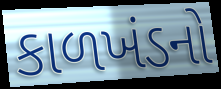
કાળખંડનો